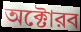
অক্টোরব